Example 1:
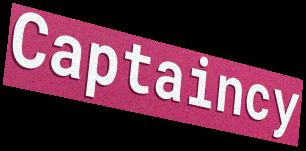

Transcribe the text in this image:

Captaincy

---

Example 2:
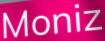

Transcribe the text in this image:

Moniz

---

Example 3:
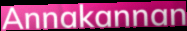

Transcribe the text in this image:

Annakannan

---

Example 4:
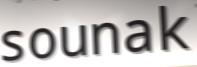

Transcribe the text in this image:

sounak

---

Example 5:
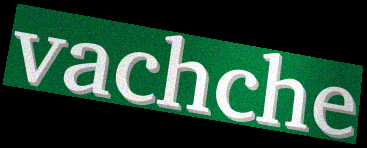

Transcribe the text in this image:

vachche